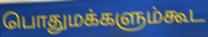
பொதுமக்களும்கூட